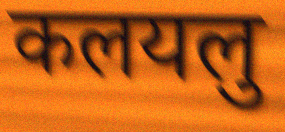
कलयलु